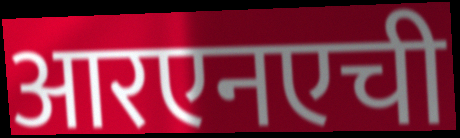
आरएनएची